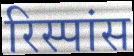
रिस्पांस